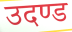
उदण्ड